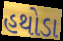
હથોડા